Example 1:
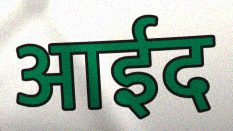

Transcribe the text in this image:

आईद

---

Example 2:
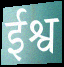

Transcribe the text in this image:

ईश्व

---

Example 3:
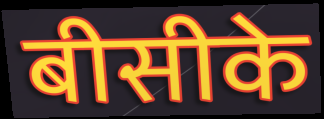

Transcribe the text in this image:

बीसीके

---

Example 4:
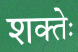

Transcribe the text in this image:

शक्तेः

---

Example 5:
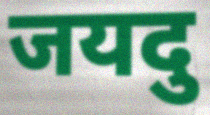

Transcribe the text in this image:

जयदु